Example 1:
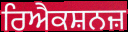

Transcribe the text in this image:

ਰਿਐਕਸ਼ਨਜ਼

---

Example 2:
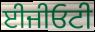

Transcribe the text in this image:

ਈਜੀਓਟੀ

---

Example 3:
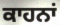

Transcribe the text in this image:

ਕਾਹਨਾਂ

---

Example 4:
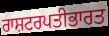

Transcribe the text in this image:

ਰਾਸ਼ਟਰਪਤੀਭਾਰਤ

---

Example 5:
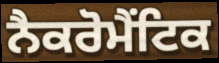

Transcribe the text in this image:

ਨੈਕਰੋਮੈਂਟਿਕ